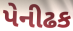
પેનીઢક